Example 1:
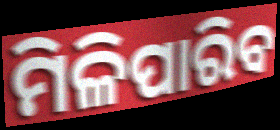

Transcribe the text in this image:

ମିଳିପାରିବ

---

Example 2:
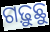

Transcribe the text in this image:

ଗଢ଼ୁଛୁ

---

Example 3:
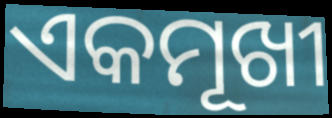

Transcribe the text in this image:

ଏକମୂଖୀ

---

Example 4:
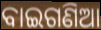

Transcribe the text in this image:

ବାଇଗଣିଆ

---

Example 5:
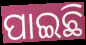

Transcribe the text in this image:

ପାଇଛି